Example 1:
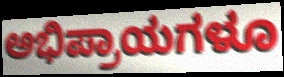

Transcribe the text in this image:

ಅಭಿಪ್ರಾಯಗಳೂ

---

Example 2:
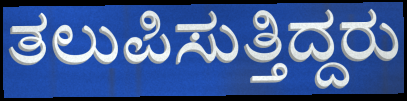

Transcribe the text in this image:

ತಲುಪಿಸುತ್ತಿದ್ದರು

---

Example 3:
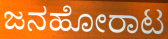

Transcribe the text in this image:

ಜನಹೋರಾಟ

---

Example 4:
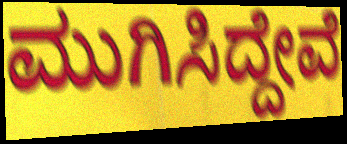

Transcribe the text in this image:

ಮುಗಿಸಿದ್ದೇವೆ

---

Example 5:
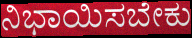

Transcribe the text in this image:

ನಿಭಾಯಿಸಬೇಕು